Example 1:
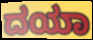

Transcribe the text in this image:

ದಯಾ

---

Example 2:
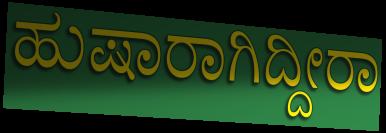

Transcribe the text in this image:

ಹುಷಾರಾಗಿದ್ದೀರಾ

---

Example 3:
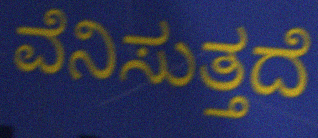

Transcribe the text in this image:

ವೆನಿಸುತ್ತದೆ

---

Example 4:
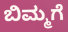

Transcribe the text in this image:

ಬಿಮ್ಮಗೆ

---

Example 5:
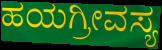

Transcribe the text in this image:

ಹಯಗ್ರೀವಸ್ಯ